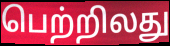
பெற்றிலது